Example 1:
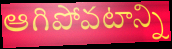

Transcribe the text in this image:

ఆగిపోవటాన్ని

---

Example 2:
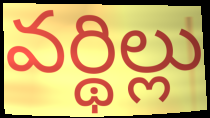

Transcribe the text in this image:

వర్థిల్లు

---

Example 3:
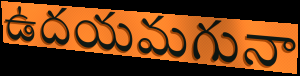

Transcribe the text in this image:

ఉదయమగునా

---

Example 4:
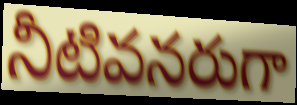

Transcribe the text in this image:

నీటివనరుగా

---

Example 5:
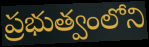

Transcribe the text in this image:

ప్రభుత్వంలోని